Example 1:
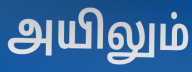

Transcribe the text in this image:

அயிலும்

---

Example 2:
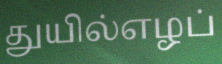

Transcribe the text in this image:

துயில்எழப்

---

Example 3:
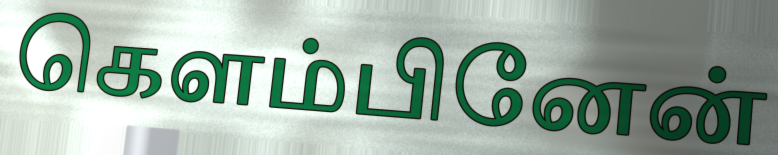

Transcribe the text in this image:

கெளம்பினேன்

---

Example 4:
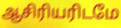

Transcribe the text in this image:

ஆசிரியரிடமே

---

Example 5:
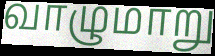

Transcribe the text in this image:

வாழுமாறு